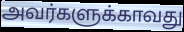
அவர்களுக்காவது